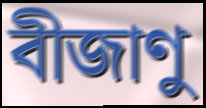
বীজাণু